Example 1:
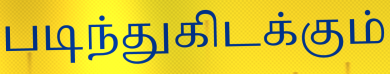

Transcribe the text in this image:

படிந்துகிடக்கும்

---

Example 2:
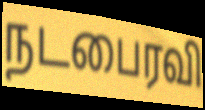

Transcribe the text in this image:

நடபைரவி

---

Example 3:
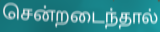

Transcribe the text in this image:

சென்றடைந்தால்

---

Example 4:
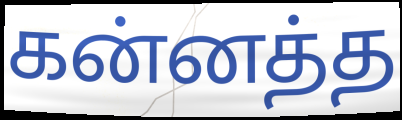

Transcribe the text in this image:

கன்னத்த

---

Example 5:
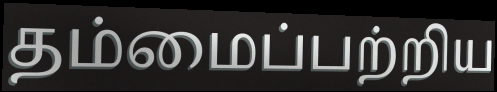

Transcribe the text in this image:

தம்மைப்பற்றிய